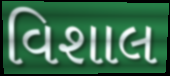
વિશાલ